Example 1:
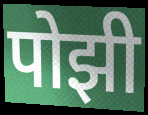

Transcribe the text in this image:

पोझी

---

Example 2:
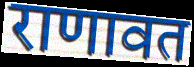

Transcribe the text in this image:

राणावत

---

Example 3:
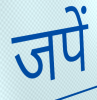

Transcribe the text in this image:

जपें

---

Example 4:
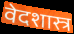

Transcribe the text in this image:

वेदशास्त्र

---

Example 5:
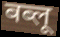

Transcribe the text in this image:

बब्लू